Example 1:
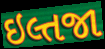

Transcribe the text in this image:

ઇલ્તજા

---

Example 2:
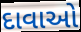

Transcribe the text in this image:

દાવાઓ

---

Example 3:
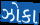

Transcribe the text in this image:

ઝોકા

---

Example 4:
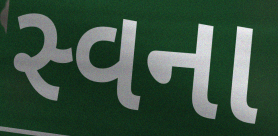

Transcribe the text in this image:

સ્વના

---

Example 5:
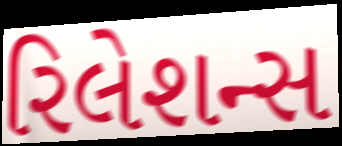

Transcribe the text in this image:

રિલેશન્સ